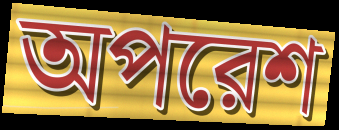
অপরেশ